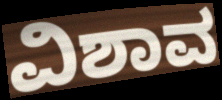
ವಿಶಾವ